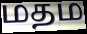
மதம